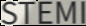
STEMI